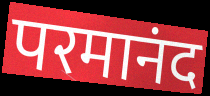
परमानंद